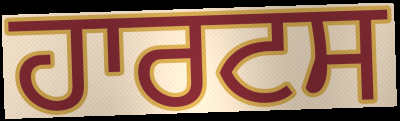
ਹਾਰਟਸ